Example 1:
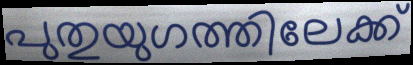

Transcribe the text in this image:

പുതുയുഗത്തിലേക്ക്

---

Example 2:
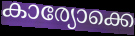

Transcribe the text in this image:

കാര്യോക്കെ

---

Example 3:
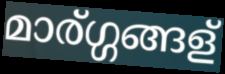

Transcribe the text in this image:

മാര്ഗ്ഗങ്ങള്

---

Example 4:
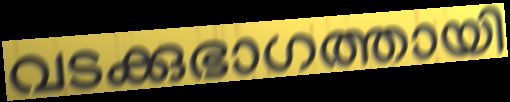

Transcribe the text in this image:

വടക്കുഭാഗത്തായി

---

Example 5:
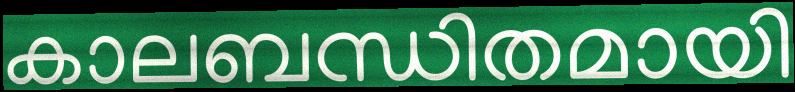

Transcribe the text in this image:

കാലബന്ധിതമായി